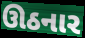
ઊઠનાર